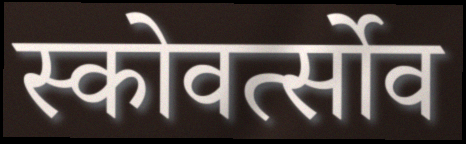
स्कोवर्त्सोव